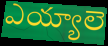
ఎయ్యాలె